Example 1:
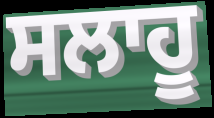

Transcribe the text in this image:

ਸਲਾਹੂ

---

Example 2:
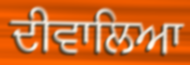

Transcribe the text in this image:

ਦੀਵਾਲਿਆ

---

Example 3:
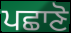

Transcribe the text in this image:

ਪਛਾਣੋ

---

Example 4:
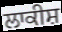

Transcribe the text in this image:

ਲਾਕੀਸ਼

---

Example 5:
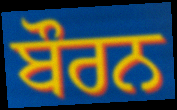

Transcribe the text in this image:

ਬੌਰਨ